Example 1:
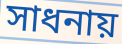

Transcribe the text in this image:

সাধনায়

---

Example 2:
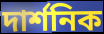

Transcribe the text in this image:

দার্শনিক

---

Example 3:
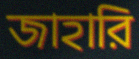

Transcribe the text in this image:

জাহারি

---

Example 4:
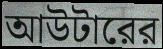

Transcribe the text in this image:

আউটারের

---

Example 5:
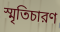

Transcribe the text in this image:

স্মৃতিচারণ